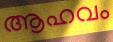
ആഹവം